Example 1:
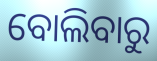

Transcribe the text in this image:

ବୋଲିବାରୁ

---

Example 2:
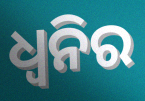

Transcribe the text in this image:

ଧ୍ବନିର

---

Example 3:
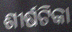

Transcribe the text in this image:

ଶୀର୍ଷଟିକା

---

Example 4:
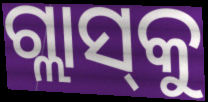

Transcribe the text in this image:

ଗ୍ଲାସ୍‌କୁ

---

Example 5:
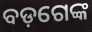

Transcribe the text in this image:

ବଡ଼ଗେଙ୍କ